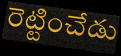
రెట్టించేడు